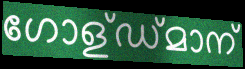
ഗോള്ഡ്മാന്